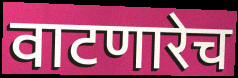
वाटणारेच